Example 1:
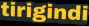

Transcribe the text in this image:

tirigindi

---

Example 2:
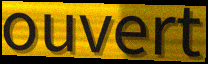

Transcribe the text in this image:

ouvert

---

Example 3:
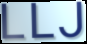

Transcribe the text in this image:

LLJ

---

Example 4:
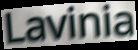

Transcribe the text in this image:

Lavinia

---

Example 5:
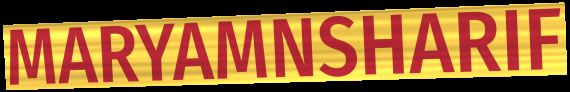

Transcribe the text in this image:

MARYAMNSHARIF